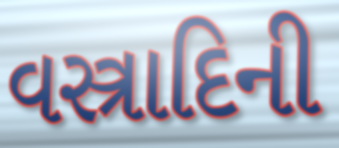
વસ્ત્રાદિની